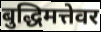
बुद्धिमत्तेवर